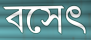
বসেৎ